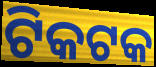
ଟିକଟକ